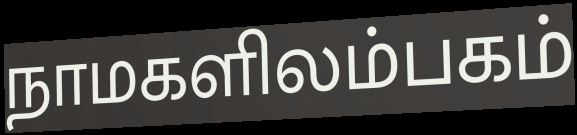
நாமகளிலம்பகம்